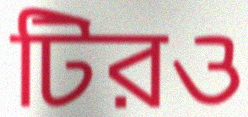
টিরও